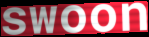
swoon